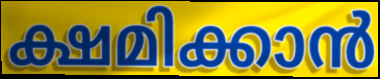
ക്ഷമിക്കാൻ